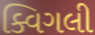
ક્વિગલી